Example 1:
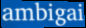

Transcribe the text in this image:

ambigai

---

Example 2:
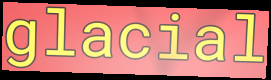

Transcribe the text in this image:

glacial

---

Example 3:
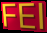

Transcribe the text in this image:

FEI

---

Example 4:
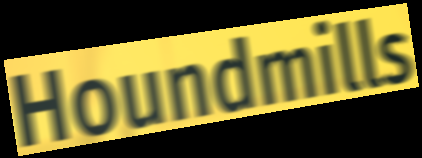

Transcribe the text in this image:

Houndmills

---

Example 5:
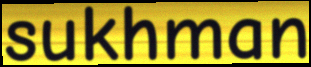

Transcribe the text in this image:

sukhman